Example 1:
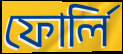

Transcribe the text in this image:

ফোর্লি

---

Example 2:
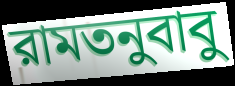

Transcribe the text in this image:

রামতনুবাবু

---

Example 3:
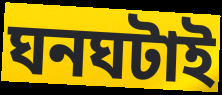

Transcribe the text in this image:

ঘনঘটাই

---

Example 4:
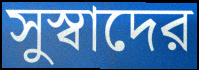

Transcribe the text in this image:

সুস্বাদের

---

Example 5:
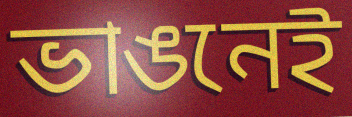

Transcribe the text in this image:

ভাঙনেই